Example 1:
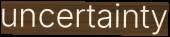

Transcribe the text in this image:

uncertainty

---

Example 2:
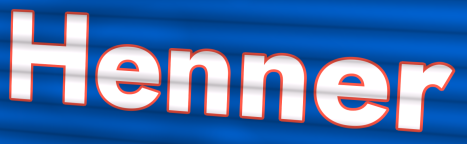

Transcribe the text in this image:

Henner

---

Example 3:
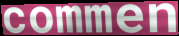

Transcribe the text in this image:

commen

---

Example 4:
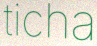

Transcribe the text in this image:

ticha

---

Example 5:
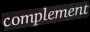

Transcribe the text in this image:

complement